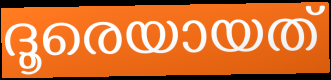
ദൂരെയായത്